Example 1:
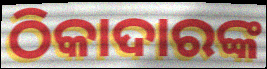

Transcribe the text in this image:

ଠିକାଦାରଙ୍କ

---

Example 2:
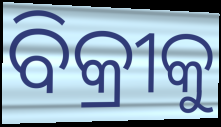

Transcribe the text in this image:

ବିକ୍ରୀକୁ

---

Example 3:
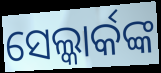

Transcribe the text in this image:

ସେଲ୍କାର୍କଙ୍କ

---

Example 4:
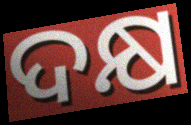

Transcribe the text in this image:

ଦକ୍ଷ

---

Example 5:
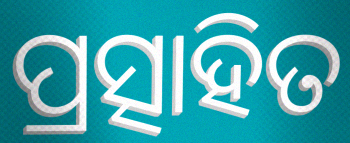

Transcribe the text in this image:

ପ୍ରତ୍ସାହିତ